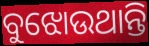
ବୁଝୋଉଥାନ୍ତି